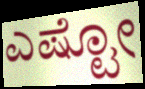
ಎಷ್ಟೋ